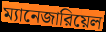
ম্যানেজারিয়েল